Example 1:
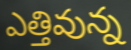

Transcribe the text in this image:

ఎత్తివున్న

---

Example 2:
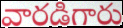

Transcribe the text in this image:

వారడిగారు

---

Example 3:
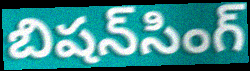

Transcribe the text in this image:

బిషన్‌సింగ్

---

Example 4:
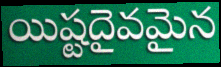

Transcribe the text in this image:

యిష్టదైవమైన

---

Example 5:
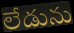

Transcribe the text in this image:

లేడును